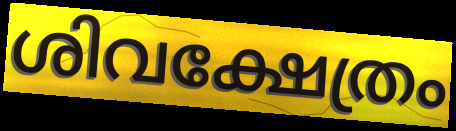
ശിവക്ഷേത്രം